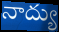
నాద్యు